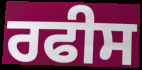
ਰਫੀਸ